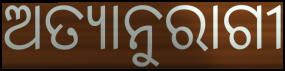
ଅତ୍ୟାନୁରାଗୀ